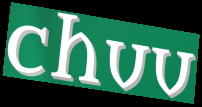
chuu